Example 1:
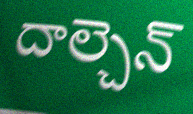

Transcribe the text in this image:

దాల్చెన్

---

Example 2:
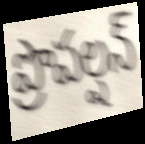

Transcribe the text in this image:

ప్రొపల్షన్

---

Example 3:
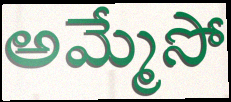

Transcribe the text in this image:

అమ్మేసో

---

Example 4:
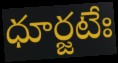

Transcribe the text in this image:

ధూర్జటేః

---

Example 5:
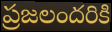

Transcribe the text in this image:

ప్రజలందరికి